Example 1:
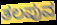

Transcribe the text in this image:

ತಲಪುವ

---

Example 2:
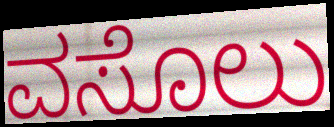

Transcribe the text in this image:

ವಸೊಲು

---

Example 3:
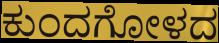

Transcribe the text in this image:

ಕುಂದಗೋಳದ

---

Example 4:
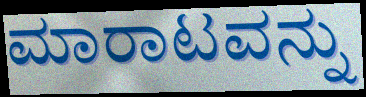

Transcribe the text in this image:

ಮಾರಾಟವನ್ನು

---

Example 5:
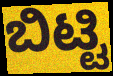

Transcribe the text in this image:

ಬಿಟ್ಟಿ